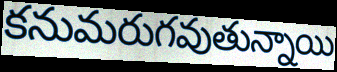
కనుమరుగవుతున్నాయి